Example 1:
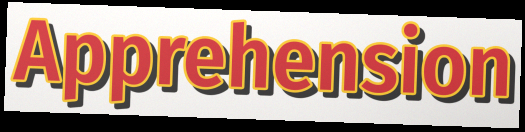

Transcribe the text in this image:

Apprehension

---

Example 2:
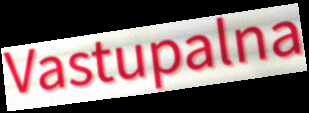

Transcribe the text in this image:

Vastupalna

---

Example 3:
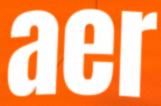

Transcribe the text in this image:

aer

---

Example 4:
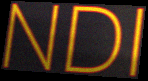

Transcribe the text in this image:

NDI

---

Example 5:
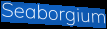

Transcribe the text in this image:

Seaborgium